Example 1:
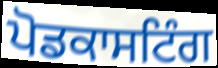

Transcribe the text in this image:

ਪੋਡਕਾਸਟਿੰਗ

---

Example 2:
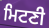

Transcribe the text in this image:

ਮਿਟਣੀ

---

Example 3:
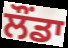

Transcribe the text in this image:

ਲੌਂਡਾ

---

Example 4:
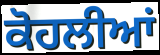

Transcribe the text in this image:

ਕੋਹਲੀਆਂ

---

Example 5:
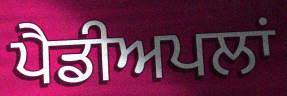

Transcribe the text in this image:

ਪੈਡੀਅਪਲਾਂ